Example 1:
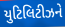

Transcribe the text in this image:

યુટિલિટીઝને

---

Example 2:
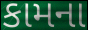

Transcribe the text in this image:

કામના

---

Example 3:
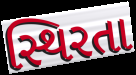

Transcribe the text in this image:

સ્થિરતા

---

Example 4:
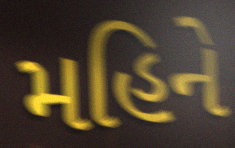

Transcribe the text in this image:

મહિને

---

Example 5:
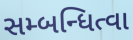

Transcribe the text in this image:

સમ્બન્ધિત્વા